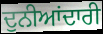
ਦੁਨੀਆਂਦਾਰੀ